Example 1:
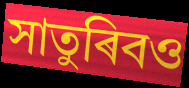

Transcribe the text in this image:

সাতুৰিবও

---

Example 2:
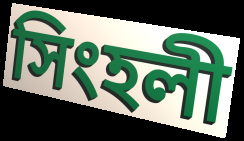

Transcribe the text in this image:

সিংহলী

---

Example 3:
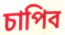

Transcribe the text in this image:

চাপিব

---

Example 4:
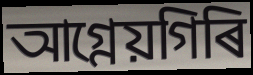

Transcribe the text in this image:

আগ্নেয়গিৰি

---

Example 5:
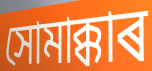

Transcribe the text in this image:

সোমাক্কাৰ